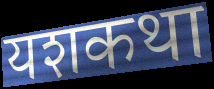
यशकथा